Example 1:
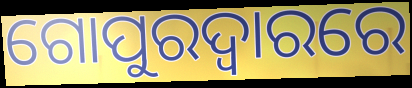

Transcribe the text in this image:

ଗୋପୁରଦ୍ବାରରେ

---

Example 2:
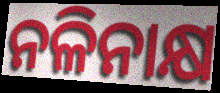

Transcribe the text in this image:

ନଳିନାକ୍ଷ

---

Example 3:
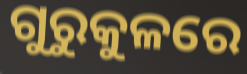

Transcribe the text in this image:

ଗୁରୁକୁଳରେ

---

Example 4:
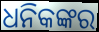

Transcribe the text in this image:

ଧନିକଙ୍କର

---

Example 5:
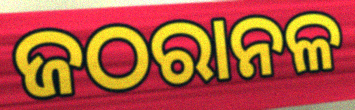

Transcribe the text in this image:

ଜଠରାନଳ